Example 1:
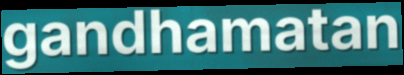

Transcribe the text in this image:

gandhamatan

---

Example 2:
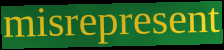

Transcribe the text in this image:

misrepresent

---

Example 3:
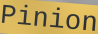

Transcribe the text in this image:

Pinion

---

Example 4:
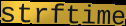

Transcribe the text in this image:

strftime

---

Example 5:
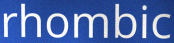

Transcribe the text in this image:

rhombic